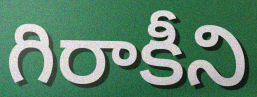
గిరాకీని